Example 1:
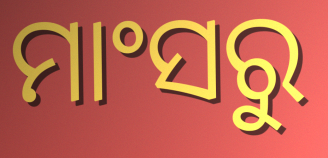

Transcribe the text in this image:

ମାଂସରୁ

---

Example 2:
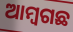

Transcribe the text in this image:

ଆମ୍ବଗଛ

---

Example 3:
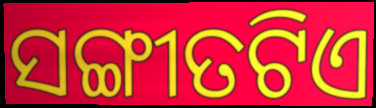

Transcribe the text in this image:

ସଙ୍ଗୀତଟିଏ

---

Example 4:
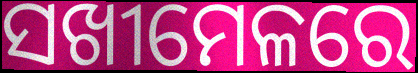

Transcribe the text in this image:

ସଖୀମେଳରେ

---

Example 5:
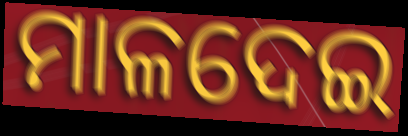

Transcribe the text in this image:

ମାଳଦେଇ